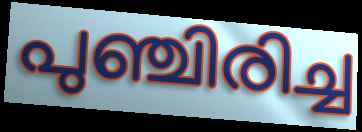
പുഞ്ചിരിച്ച